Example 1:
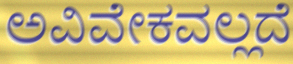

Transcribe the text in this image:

ಅವಿವೇಕವಲ್ಲದೆ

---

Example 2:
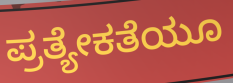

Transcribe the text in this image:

ಪ್ರತ್ಯೇಕತೆಯೂ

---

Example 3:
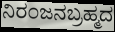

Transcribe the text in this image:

ನಿರಂಜನಬ್ರಹ್ಮದ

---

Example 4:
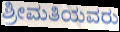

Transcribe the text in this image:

ಶ್ರೀಮತಿಯವರು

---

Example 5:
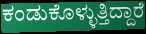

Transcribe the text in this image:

ಕಂಡುಕೊಳ್ಳುತ್ತಿದ್ದಾರೆ